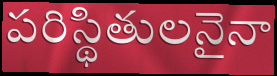
పరిస్థితులనైనా